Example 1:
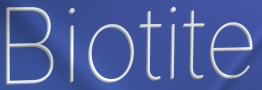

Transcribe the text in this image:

Biotite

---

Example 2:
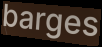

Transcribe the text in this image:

barges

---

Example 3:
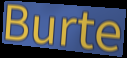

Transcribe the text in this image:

Burte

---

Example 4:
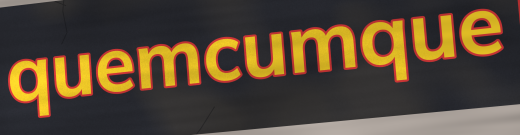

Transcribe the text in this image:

quemcumque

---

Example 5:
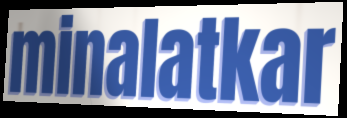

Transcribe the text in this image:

minalatkar